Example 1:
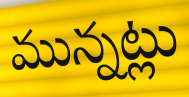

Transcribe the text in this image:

మున్నట్లు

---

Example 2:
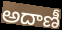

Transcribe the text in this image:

అదాణీ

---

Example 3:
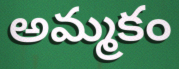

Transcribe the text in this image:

అమ్మకం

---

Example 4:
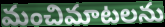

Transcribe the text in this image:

మంచిమాటలను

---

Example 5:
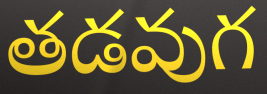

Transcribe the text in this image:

తడవుగ